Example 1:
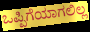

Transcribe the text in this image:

ಒಪ್ಪಿಗೆಯಾಗಲಿಲ್ಲ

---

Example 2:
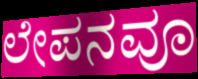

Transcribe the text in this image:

ಲೇಪನವೂ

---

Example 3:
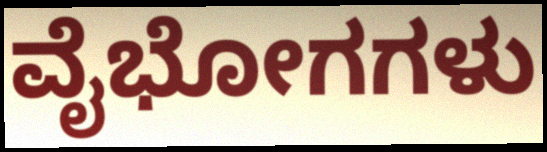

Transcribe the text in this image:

ವೈಭೋಗಗಳು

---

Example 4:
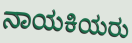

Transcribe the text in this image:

ನಾಯಕಿಯರು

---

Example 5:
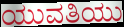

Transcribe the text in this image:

ಯುವತಿಯು